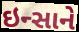
ઇન્સાને